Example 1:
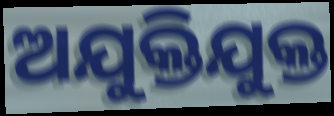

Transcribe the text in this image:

ଅଯୁକ୍ତିଯୁକ୍ତ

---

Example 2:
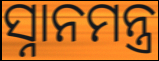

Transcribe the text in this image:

ସ୍ନାନମନ୍ତ୍ର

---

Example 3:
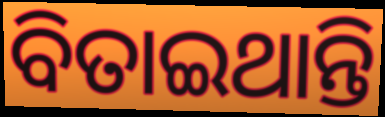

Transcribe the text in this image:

ବିତାଇଥାନ୍ତି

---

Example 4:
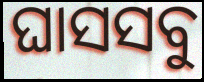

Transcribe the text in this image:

ଘାସସବୁ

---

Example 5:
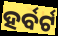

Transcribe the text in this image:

ହର୍ବର୍ଟ